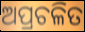
ଅପ୍ରଚଳିତ